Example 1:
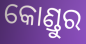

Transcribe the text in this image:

କୋଣ୍ଡୁର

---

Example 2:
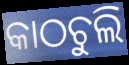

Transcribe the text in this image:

କାଠଚୁଲି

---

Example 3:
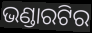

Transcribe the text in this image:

ଭଣ୍ଡାରଟିର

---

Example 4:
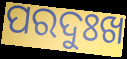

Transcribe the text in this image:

ପରଦୁଃଖ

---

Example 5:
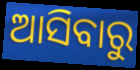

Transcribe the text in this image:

ଆସିବାରୁ